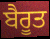
ਬੈਰੂਤ